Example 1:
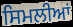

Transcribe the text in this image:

ਸਿਮਲੀਆਂ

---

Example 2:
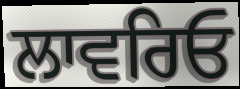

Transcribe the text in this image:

ਲਾਵਰਿਓ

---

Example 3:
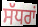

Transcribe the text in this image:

ਸੱਧਰਾਂ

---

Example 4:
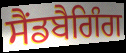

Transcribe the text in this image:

ਸੈਂਡਬੈਗਿੰਗ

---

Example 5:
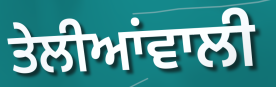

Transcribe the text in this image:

ਤੇਲੀਆਂਵਾਲੀ